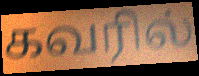
கவரில்